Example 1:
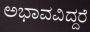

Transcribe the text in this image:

ಅಭಾವವಿದ್ದರೆ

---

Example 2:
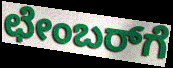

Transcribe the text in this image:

ಛೇಂಬರ್‌ಗೆ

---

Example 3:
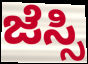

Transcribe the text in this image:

ಜೆಸ್ಸಿ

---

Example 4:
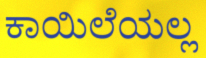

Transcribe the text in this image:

ಕಾಯಿಲೆಯಲ್ಲ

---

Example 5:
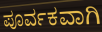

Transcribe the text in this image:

ಪೂರ್ವಕವಾಗಿ